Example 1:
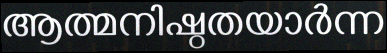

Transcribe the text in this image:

ആത്മനിഷ്ഠതയാർന്ന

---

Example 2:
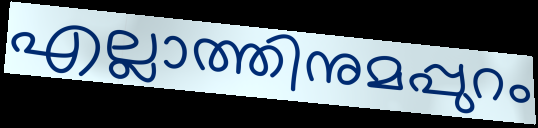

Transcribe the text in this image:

എല്ലാത്തിനുമപ്പുറം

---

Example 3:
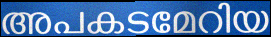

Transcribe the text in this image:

അപകടമേറിയ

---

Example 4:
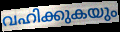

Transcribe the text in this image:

വഹിക്കുകയും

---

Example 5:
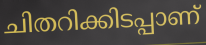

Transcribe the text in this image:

ചിതറിക്കിടപ്പാണ്